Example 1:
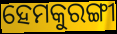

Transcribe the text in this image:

ହେମକୁରଙ୍ଗୀ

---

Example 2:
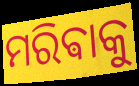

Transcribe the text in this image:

ମରିଵାକୁ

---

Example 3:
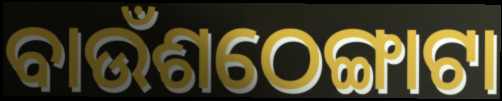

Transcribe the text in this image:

ବାଉଁଶଠେଙ୍ଗାଟା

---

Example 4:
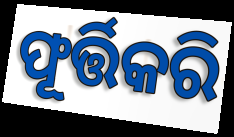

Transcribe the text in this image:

ଫୂର୍ତ୍ତିକରି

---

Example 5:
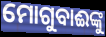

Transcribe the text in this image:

ମୋଗୁବାଈଙ୍କୁ